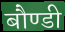
बौण्डी